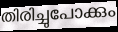
തിരിച്ചുപോക്കും